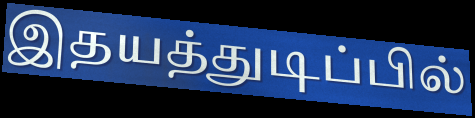
இதயத்துடிப்பில்